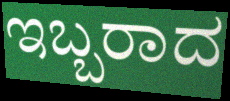
ಇಬ್ಬರಾದ